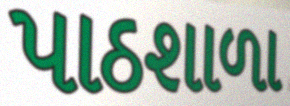
પાઠશાળા